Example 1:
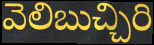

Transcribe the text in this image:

వెలిబుచ్చిరి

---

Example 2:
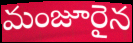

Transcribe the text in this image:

మంజూరైన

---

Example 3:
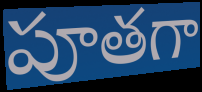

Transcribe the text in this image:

పూతగా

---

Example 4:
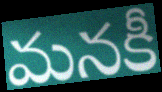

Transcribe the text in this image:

మనకీ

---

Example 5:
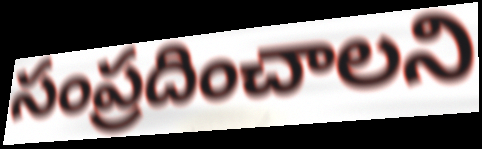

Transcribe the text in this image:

సంప్రదించాలని